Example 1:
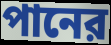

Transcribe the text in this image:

পানের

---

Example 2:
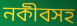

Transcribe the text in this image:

নকীবসহ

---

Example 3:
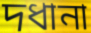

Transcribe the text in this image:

দধানা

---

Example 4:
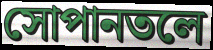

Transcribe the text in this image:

সোপানতলে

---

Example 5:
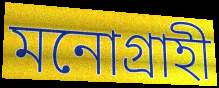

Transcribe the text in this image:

মনোগ্রাহী